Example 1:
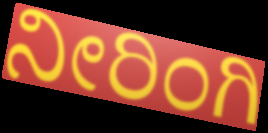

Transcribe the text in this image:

ನೀರಿಂಗಿ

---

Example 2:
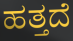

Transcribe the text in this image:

ಹತ್ತದೆ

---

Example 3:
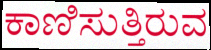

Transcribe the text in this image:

ಕಾಣಿಸುತ್ತಿರುವ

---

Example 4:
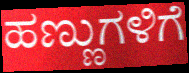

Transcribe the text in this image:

ಹಣ್ಣುಗಳಿಗೆ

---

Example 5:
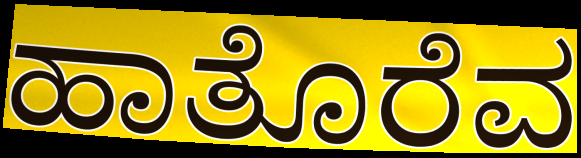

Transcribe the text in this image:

ಹಾತೊರೆವ